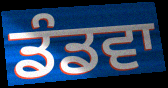
ਡੰਡਵਾ